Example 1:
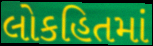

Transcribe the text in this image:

લોકહિતમાં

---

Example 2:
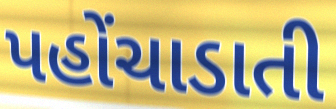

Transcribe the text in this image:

પહોંચાડાતી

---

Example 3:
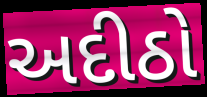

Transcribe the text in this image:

અદીઠો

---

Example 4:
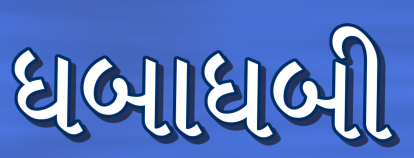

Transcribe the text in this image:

ધબાધબી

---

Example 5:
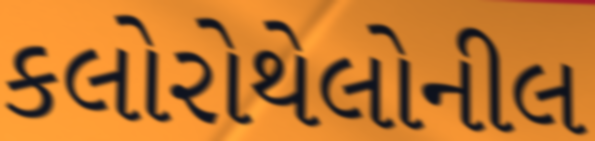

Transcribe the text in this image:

કલોરોથેલોનીલ